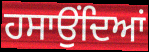
ਹਸਾਉਂਦਿਆਂ